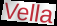
Vella